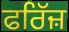
ਫਰਿੱਜ਼